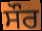
ਸੌਰ